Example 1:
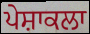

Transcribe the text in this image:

ਪੇਸ਼ਾਕਲਾ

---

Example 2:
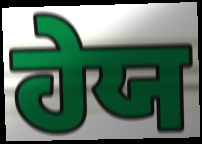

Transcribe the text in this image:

ਹੇਯ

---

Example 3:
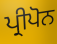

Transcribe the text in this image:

ਪ੍ਰੀਪੋਨ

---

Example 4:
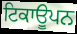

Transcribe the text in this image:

ਟਿਕਾਊਪਨ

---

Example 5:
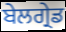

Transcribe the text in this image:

ਬੇਲਗ੍ਰੇਡ